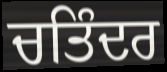
ਚਤਿੰਦਰ